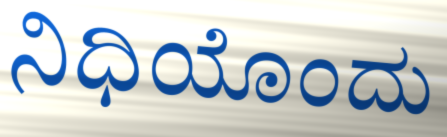
ನಿಧಿಯೊಂದು